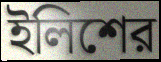
ইলিশের